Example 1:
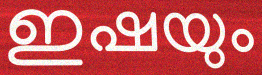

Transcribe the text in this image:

ഇഷയും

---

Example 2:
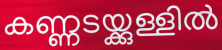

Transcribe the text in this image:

കണ്ണടയ്ക്കുള്ളിൽ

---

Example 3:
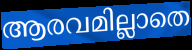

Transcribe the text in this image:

ആരവമില്ലാതെ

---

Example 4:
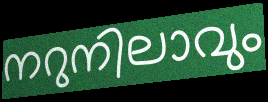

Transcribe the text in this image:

നറുനിലാവും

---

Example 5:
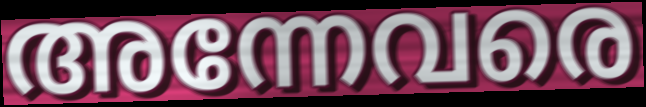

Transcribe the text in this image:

അന്നേവരെ